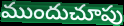
ముందుచూపు